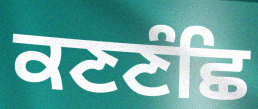
ਕਣਣੰਛਿ